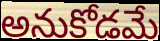
అనుకోడమే